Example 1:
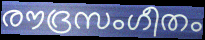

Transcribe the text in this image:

രൗദ്രസംഗീതം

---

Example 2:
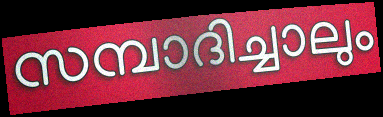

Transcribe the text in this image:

സമ്പാദിച്ചാലും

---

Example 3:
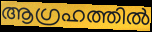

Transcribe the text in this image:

ആഗ്രഹത്തിൽ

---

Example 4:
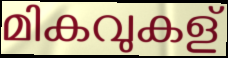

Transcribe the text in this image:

മികവുകള്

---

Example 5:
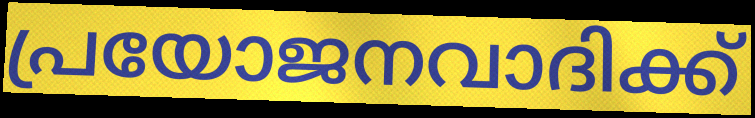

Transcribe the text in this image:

പ്രയോജനവാദിക്ക്